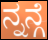
ನ್ನನ್ಗೆ